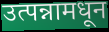
उत्पन्नामधून